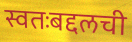
स्वतःबद्दलची